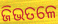
ଜିଭତଳେ